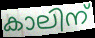
കാലിന്